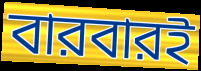
বারবারই